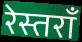
रेस्तराँ